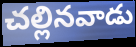
చల్లినవాడు